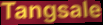
Tangsale